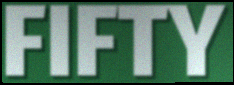
FIFTY